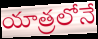
యాత్రలోనే